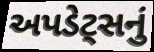
અપડેટ્સનું